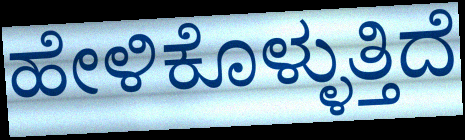
ಹೇಳಿಕೊಳ್ಳುತ್ತಿದೆ